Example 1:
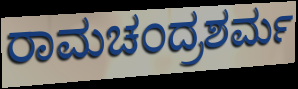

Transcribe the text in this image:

ರಾಮಚಂದ್ರಶರ್ಮ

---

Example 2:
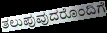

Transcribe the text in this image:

ತಲುಪುವುದರೊಂದಿಗೆ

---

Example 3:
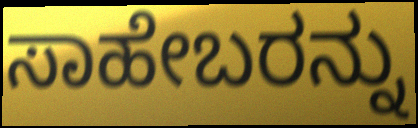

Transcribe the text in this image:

ಸಾಹೇಬರನ್ನು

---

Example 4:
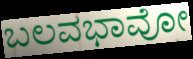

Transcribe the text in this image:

ಬಲವಭಾವೋ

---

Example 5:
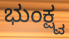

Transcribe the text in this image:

ಭುಂಕ್ಷ್ವ